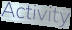
Activity